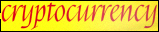
cryptocurrency